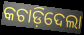
କଚାଡ଼ିଦେଲା